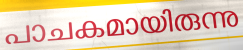
പാചകമായിരുന്നു